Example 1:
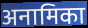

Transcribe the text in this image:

अनामिका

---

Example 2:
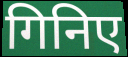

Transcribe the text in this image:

गिनिए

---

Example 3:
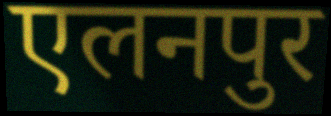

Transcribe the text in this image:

एलनपुर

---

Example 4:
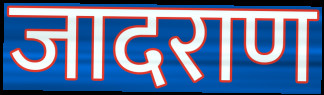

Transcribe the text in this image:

जादराण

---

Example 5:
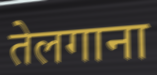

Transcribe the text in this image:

तेलगाना